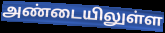
அண்டையிலுள்ள